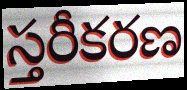
స్తరీకరణ